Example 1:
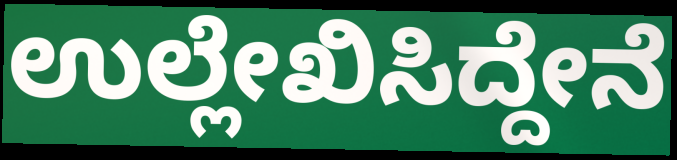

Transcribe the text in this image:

ಉಲ್ಲೇಖಿಸಿದ್ದೇನೆ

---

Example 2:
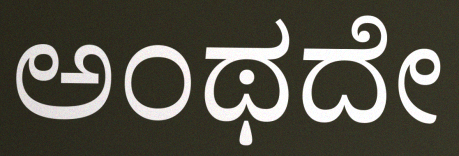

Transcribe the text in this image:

ಅಂಥದೇ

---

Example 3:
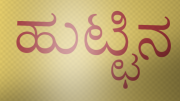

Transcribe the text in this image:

ಹುಟ್ಟಿನ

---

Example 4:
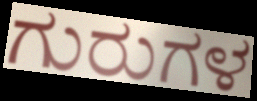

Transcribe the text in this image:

ಗುರುಗಳ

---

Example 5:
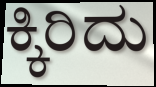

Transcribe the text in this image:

ಕ್ಕಿರಿದು